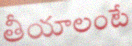
తీయాలంటే